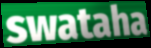
swataha